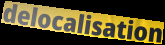
delocalisation